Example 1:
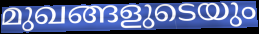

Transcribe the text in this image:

മുഖങ്ങളുടെയും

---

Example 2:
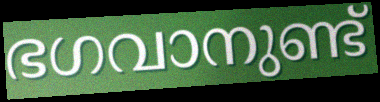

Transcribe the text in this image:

ഭഗവാനുണ്ട്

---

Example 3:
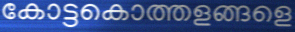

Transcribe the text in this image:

കോട്ടകൊത്തളങ്ങളെ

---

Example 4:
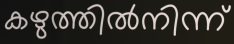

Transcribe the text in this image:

കഴുത്തിൽനിന്ന്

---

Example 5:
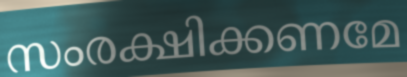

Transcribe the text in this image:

സംരക്ഷിക്കണമേ